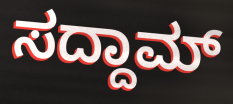
ಸದ್ದಾಮ್